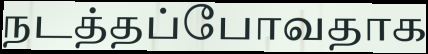
நடத்தப்போவதாக